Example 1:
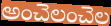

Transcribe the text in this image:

అంచెలంచెల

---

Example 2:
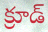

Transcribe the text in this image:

క్రూడ్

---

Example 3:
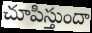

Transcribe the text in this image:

చూపిస్తుందా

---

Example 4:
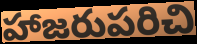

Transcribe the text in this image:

హాజరుపరిచి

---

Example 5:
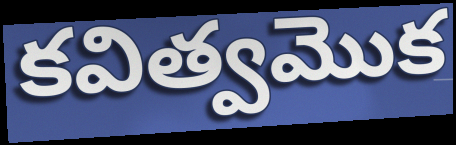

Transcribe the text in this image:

కవిత్వమొక